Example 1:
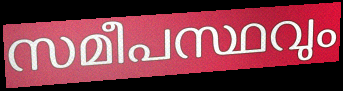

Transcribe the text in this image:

സമീപസ്ഥവും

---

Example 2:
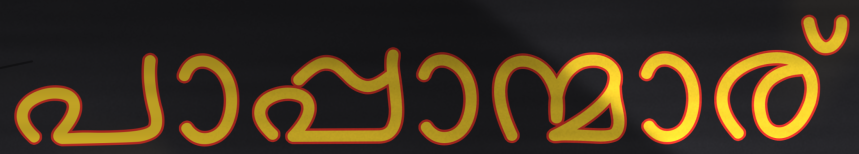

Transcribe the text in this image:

പാപ്പാന്മാര്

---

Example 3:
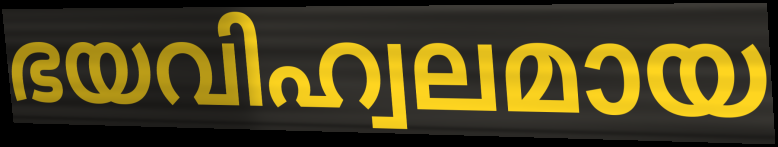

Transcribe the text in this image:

ഭയവിഹ്വലമായ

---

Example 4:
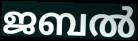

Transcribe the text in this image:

ജബൽ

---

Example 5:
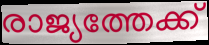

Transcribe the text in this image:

രാജ്യത്തേക്ക്